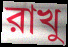
রাখু